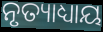
ନୃତ୍ୟାଧ୍ୟାୟ